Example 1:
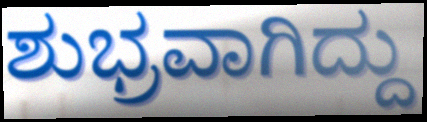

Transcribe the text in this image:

ಶುಭ್ರವಾಗಿದ್ದು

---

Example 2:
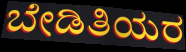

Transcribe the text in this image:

ಬೇಡಿತಿಯರ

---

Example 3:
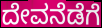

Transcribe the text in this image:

ದೇವನೆಡೆಗೆ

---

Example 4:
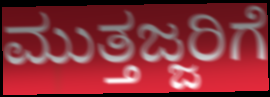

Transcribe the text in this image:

ಮುತ್ತಜ್ಜರಿಗೆ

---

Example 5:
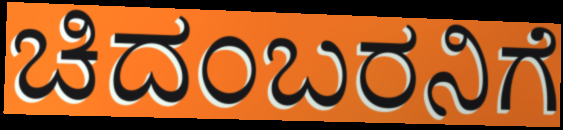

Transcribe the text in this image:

ಚಿದಂಬರನಿಗೆ